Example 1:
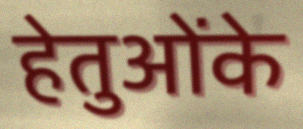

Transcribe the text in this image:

हेतुओंके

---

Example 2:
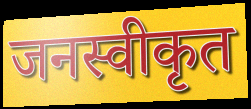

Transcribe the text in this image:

जनस्वीकृत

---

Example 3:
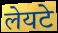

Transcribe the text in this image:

लेयटे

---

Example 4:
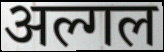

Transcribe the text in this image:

अल्गल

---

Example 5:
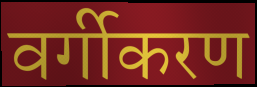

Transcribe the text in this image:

वर्गीकरण